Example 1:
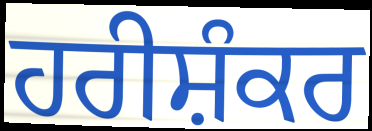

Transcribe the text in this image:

ਹਰੀਸ਼ੰਕਰ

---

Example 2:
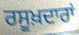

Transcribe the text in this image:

ਰਸੂਖ਼ਦਾਰਾਂ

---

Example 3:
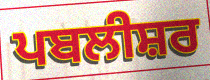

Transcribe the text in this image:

ਪਬਲੀਸ਼ਰ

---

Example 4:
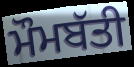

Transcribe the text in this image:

ਮੌਮਬੱਤੀ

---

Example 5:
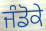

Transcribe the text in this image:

ਜੰਡੋਕੇ